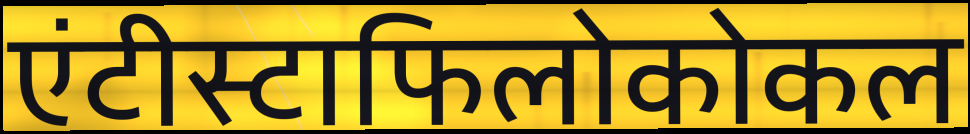
एंटीस्टाफिलोकोकल